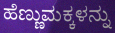
ಹೆಣ್ಣುಮಕ್ಕಳನ್ನು